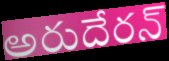
అరుదేరన్